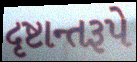
દૃષ્ટાન્તરૂપે